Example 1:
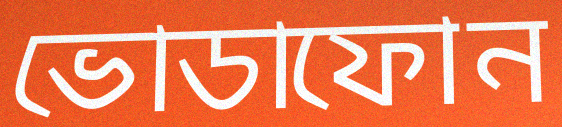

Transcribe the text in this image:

ভোডাফোন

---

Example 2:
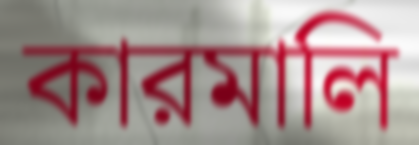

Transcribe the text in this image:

কারমালি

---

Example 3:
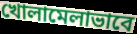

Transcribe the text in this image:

খোলামেলাভাবে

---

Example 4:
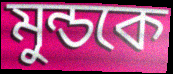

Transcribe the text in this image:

মুন্ডকে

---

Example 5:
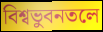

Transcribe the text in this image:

বিশ্বভুবনতলে